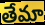
తేమా